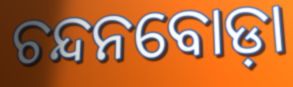
ଚନ୍ଦନବୋଡ଼ା